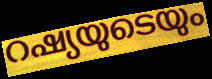
റഷ്യയുടെയും